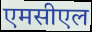
एमसीएल